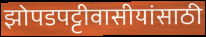
झोपडपट्टीवासीयांसाठी